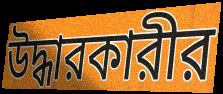
উদ্ধারকারীর